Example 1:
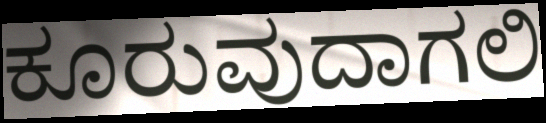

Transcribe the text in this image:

ಕೂರುವುದಾಗಲಿ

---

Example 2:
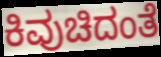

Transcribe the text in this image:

ಕಿವುಚಿದಂತೆ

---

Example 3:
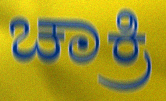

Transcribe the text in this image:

ಚಾಕ್ರಿ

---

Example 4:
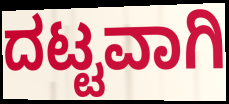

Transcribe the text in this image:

ದಟ್ಟವಾಗಿ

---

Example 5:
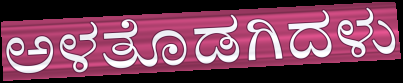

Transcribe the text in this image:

ಅಳತೊಡಗಿದಳು